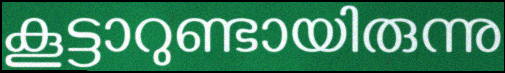
കൂട്ടാറുണ്ടായിരുന്നു